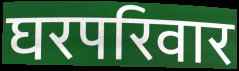
घरपरिवार